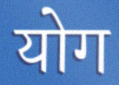
योग